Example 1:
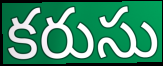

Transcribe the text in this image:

కరుసు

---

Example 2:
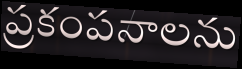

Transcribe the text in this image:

ప్రకంపనాలను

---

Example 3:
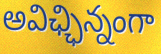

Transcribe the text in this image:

అవిఛ్ఛిన్నంగా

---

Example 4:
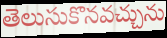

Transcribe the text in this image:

తెలుసుకొనవచ్చును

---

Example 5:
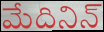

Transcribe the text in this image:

మేదినిన్